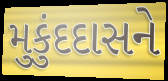
મુકુંદદાસને